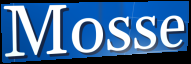
Mosse